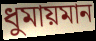
ধুমায়মান